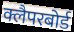
क्लैपरबोर्ड